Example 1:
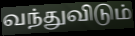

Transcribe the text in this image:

வந்துவிடும்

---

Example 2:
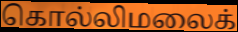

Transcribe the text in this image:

கொல்லிமலைக்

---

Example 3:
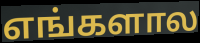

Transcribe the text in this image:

எங்களால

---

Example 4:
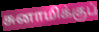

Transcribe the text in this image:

சுனாமிக்குப்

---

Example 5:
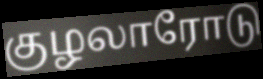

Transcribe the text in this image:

குழலாரோடு